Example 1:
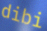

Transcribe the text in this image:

dibi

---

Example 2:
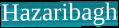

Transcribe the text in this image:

Hazaribagh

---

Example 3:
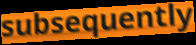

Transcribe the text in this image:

subsequently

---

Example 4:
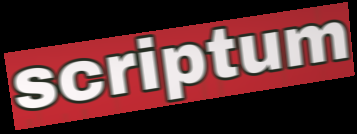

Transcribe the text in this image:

scriptum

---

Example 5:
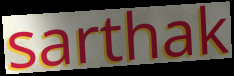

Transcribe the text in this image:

sarthak